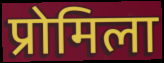
प्रोमिला